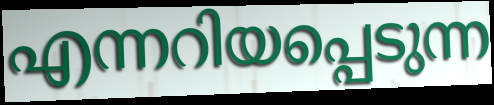
എന്നറിയപ്പെടുന്ന